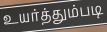
உயர்த்தும்படி